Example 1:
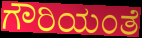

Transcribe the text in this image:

ಗೌರಿಯಂತೆ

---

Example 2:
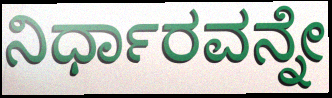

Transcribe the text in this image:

ನಿರ್ಧಾರವನ್ನೇ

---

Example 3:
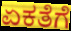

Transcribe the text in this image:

ಏಕತೆಗೆ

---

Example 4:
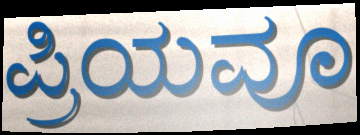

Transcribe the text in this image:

ಪ್ರಿಯವೂ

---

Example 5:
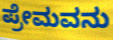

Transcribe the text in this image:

ಪ್ರೇಮವನು